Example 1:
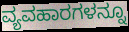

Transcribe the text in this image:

ವ್ಯವಹಾರಗಳನ್ನೂ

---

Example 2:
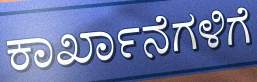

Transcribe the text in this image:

ಕಾರ್ಖಾನೆಗಳಿಗೆ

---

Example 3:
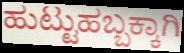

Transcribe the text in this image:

ಹುಟ್ಟುಹಬ್ಬಕ್ಕಾಗಿ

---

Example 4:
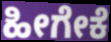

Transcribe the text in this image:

ಹೀಗೇಕೆ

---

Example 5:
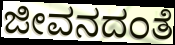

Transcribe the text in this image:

ಜೀವನದಂತೆ